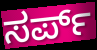
ಸರ್ಪ್